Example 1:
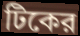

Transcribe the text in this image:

টিকের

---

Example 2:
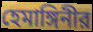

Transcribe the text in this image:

হেমাঙ্গিনীর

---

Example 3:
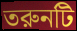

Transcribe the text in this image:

তরুনটি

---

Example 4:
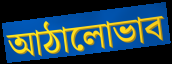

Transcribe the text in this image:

আঠালোভাব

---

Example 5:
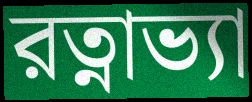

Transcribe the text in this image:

রত্নাভ্যা